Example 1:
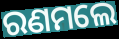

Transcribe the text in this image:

ରଣମଲେ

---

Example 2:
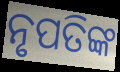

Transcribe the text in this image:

ନୃପତିଙ୍କ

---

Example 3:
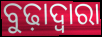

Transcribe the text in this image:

ବୁଢ଼ାଦ୍ୱାରା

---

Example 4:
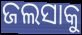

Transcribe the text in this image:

ଜଲସାକୁ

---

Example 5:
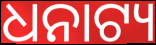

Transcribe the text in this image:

ଧନାଟ୍ୟ